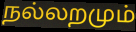
நல்லறமும்